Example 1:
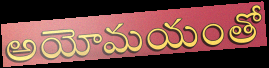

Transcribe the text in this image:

అయోమయంతో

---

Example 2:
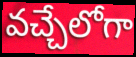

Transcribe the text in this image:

వచ్చేలోగా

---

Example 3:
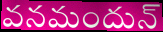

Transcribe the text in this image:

వనమందున్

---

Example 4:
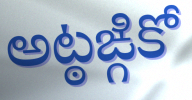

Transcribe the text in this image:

అట్ఠఙ్గికో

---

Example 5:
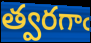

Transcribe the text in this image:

త్వరగాఁ